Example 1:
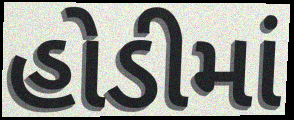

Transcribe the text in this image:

હોડીમાં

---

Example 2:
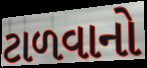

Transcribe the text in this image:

ટાળવાનો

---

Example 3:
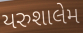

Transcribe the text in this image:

યરુશાલેમ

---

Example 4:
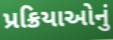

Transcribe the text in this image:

પ્રક્રિયાઓનું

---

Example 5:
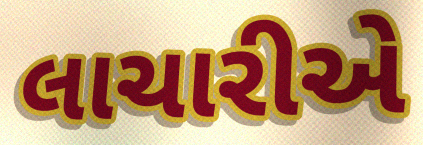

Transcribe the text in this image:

લાચારીએ